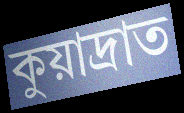
কুয়াদ্রাত